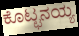
ಕೊಟ್ಟನಯ್ಯ